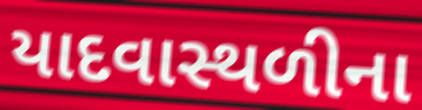
યાદવાસ્થળીના